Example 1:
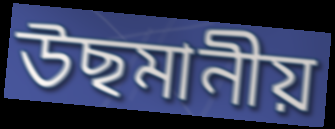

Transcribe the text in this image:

উছমানীয়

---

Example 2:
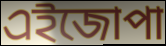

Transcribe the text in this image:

এইজোপা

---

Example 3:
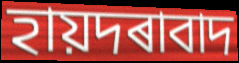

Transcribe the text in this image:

হায়দৰাবাদ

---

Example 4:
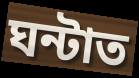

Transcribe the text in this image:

ঘন্টাত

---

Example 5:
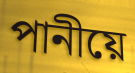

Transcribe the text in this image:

পানীয়ে